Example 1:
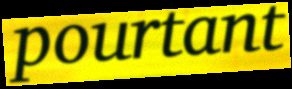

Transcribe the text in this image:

pourtant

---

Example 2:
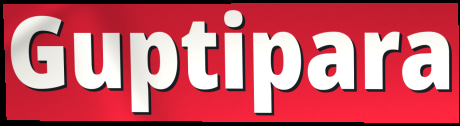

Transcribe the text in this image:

Guptipara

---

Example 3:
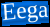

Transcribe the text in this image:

Eega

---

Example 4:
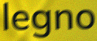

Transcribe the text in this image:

legno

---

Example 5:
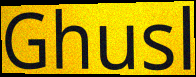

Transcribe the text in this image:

Ghusl